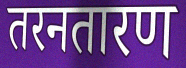
तरनतारण